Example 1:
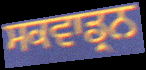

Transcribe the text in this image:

ਸਕਵਾਡ੍ਰਨ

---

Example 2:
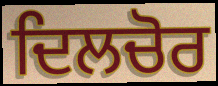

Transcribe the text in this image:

ਦਿਲਚੋਰ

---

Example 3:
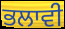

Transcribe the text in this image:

ਭਲਾਵੀ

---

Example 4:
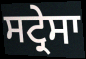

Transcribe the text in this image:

ਸਟ੍ਰੇਸਾ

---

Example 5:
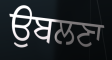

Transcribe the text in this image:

ਉਬਲਣਾ